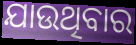
ଯାଉଥିବାର